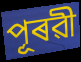
পূৰৱী